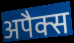
अपैक्स